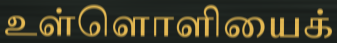
உள்ளொளியைக்